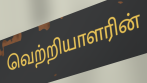
வெற்றியாளரின்